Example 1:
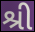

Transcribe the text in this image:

શ્રી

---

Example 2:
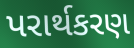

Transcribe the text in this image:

પરાર્થકરણ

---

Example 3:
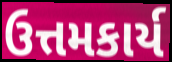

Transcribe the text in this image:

ઉત્તમકાર્ય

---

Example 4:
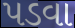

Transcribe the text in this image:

પડવા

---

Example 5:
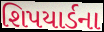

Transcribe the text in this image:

શિપયાર્ડના